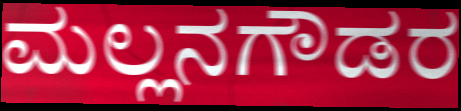
ಮಲ್ಲನಗೌಡರ